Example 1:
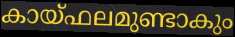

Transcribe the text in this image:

കായ്ഫലമുണ്ടാകും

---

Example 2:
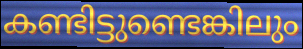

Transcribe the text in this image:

കണ്ടിട്ടുണ്ടെങ്കിലും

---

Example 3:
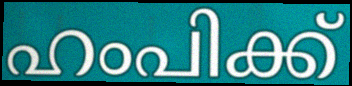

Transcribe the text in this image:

ഹംപിക്ക്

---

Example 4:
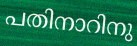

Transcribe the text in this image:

പതിനാറിനു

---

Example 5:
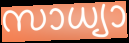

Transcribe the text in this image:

സാധ്യാ